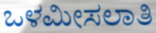
ಒಳಮೀಸಲಾತಿ